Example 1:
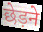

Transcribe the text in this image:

छेड़ने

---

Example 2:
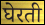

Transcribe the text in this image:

घेरती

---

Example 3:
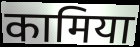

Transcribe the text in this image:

कामिया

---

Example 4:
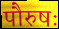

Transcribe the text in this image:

पौरुषः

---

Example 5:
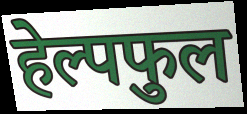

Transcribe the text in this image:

हेल्पफुल